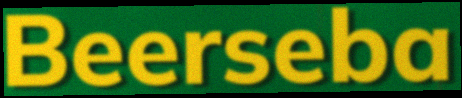
Beerseba